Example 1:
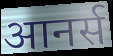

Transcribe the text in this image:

आनर्स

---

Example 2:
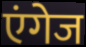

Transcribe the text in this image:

एंगेज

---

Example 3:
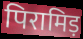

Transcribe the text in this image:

पिरामिड़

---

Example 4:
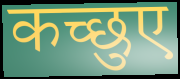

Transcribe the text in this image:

कच्छुए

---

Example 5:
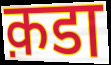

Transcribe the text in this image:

क़डा